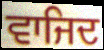
ਵਾਜਿਦ